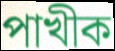
পাখীক